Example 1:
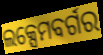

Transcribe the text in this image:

ଲକ୍ସେମବର୍ଗର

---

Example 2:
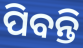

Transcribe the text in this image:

ପିବନ୍ତି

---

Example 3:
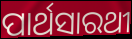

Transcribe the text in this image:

ପାର୍ଥସାରଥୀ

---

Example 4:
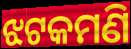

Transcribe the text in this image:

ଝଟକମଣି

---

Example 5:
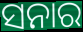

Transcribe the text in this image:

ସନାର